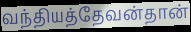
வந்தியத்தேவன்தான்